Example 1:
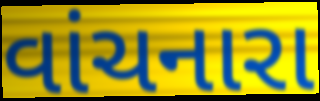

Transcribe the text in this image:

વાંચનારા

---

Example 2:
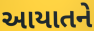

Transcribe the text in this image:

આયાતને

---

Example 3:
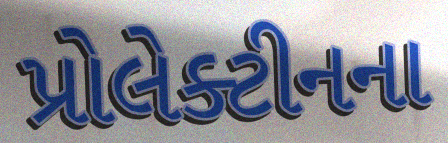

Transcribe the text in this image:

પ્રોલેક્ટીનના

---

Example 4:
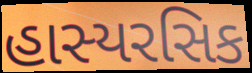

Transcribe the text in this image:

હાસ્યરસિક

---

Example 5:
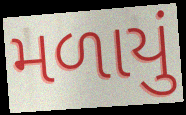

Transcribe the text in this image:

મળાયું